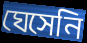
ঘেসেনি